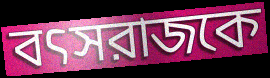
বৎসরাজকে